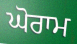
ਘੋਰਾਮ